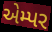
એમ્પર